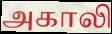
அகாலி